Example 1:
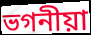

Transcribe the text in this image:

ভগনীয়া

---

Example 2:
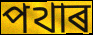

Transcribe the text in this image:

পথাৰ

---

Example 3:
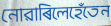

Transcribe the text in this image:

নোৱাৰিলেহেঁতেন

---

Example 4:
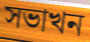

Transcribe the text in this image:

সভাখন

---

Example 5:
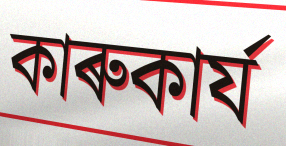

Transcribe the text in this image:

কাৰুকাৰ্য